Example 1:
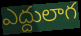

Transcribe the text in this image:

ఎద్దులాగ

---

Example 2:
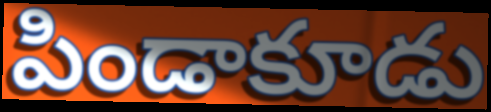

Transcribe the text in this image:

పిండాకూడు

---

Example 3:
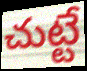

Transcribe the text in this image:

చుట్టే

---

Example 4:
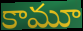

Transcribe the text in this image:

కామూ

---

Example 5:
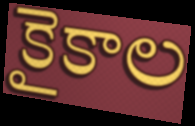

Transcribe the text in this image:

కైకాల